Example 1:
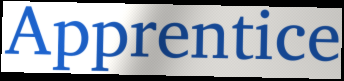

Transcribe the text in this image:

Apprentice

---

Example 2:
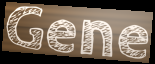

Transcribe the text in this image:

Gene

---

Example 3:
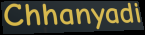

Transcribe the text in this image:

Chhanyadi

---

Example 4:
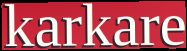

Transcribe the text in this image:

karkare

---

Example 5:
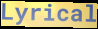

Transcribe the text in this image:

Lyrical